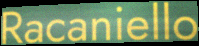
Racaniello